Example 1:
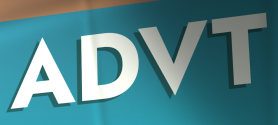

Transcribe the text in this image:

ADVT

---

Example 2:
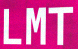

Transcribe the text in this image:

LMT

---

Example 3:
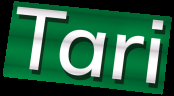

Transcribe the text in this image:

Tari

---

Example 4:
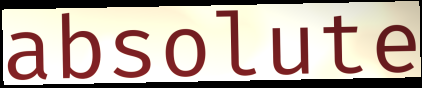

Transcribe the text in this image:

absolute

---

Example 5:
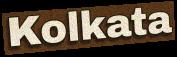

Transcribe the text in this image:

Kolkata